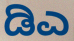
ಡಿಎ